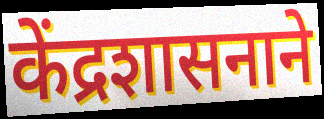
केंद्रशासनाने